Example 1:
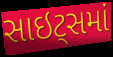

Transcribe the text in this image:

સાઇટ્સમાં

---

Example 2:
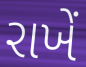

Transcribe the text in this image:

રાખેં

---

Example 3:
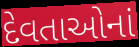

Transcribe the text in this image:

દેવતાઓનાં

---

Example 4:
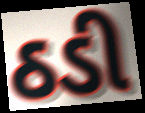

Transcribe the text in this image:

ઠડી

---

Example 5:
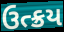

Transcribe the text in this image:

ઉત્ક્રય